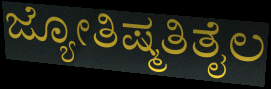
ಜ್ಯೋತಿಷ್ಮತಿತೈಲ